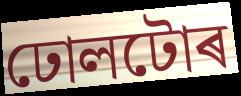
ঢোলটোৰ